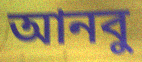
আনবু